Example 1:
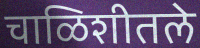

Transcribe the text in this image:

चाळिशीतले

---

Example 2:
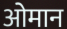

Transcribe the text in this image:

ओमान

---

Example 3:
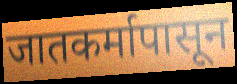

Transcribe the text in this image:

जातकर्मापासून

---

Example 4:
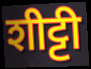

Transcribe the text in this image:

शीट्टी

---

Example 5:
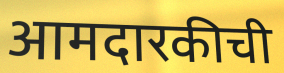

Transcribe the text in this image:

आमदारकीची